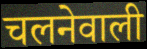
चलनेवाली